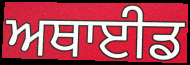
ਅਥਾਈਡ